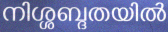
നിശ്ശബ്ദതയിൽ